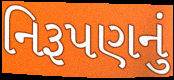
નિરૂપણનું